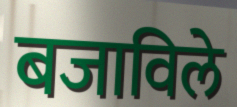
बजाविले